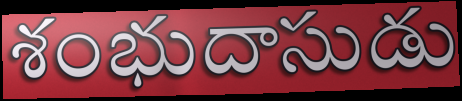
శంభుదాసుడు